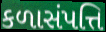
કળાસંપત્તિ